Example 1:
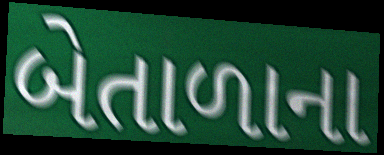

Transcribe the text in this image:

બેતાળાના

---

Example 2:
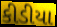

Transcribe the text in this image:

કીડીયા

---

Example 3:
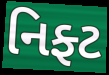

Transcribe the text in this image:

નિફ્ટ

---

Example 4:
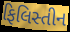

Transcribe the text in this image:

ફિલિસ્તીન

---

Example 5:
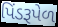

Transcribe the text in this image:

પિંડરૂપેળ